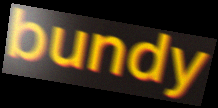
bundy